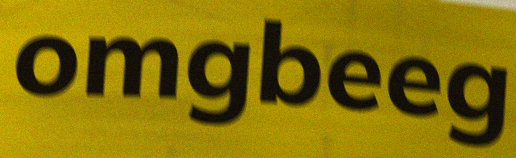
omgbeeg